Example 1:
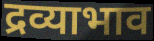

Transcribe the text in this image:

द्रव्याभाव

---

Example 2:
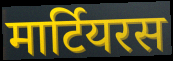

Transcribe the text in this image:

मार्टियरस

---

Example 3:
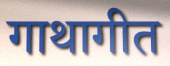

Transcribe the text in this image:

गाथागीत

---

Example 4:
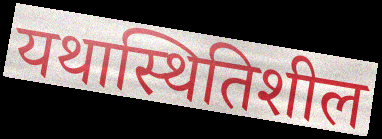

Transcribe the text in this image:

यथास्थितिशील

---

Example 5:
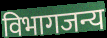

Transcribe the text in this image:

विभागजन्य